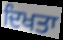
ਦਿਖਤਾ